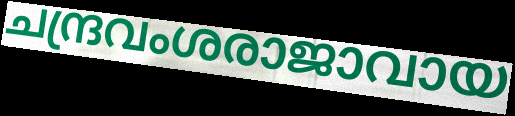
ചന്ദ്രവംശരാജാവായ